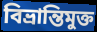
বিভ্রান্তিমুক্ত